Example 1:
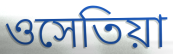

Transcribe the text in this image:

ওসেতিয়া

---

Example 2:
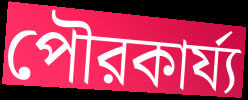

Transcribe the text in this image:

পৌরকার্য্য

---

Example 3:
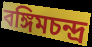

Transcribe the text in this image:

বঙ্গিমচন্দ্র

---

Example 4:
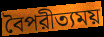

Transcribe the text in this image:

বৈপরীত্যময়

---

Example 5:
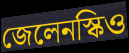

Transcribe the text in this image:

জেলেনস্কিও